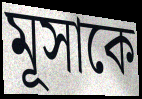
মূসাকে